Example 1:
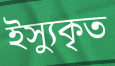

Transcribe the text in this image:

ইস্যুকৃত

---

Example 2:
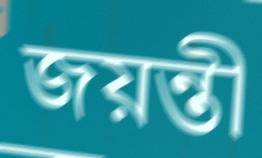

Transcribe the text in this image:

জয়ন্তী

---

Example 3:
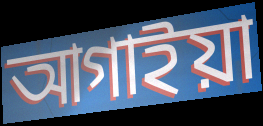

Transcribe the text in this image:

আগাইয়া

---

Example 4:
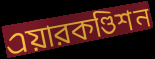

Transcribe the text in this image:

এয়ারকণ্ডিশন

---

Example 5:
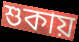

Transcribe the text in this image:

শুকায়